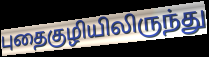
புதைகுழியிலிருந்து